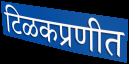
टिळकप्रणीत